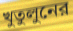
খুতুলুনের